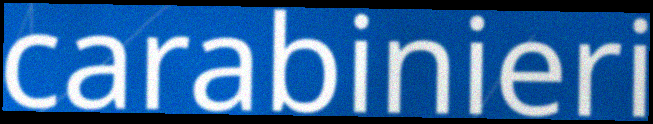
carabinieri